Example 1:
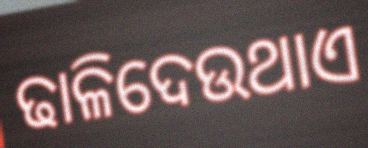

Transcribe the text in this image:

ଢାଳିଦେଉଥାଏ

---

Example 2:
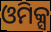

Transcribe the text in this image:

ଓମିକ୍ସ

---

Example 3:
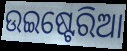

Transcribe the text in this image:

ଉଇଷ୍ଟେରିଆ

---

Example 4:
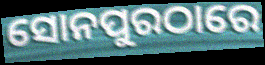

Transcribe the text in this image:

ସୋନପୁରଠାରେ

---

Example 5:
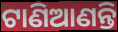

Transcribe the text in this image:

ଟାଣିଆଣନ୍ତି